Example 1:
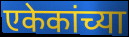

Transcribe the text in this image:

एकेकांच्या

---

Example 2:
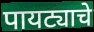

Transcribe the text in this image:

पायट्याचे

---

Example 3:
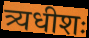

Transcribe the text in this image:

त्र्यधीशः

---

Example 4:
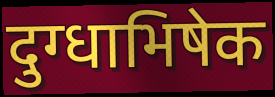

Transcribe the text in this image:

दुग्धाभिषेक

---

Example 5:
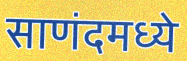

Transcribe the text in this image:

साणंदमध्ये